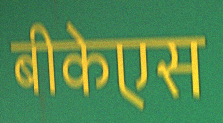
बीकेएस